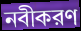
নবীকরণ